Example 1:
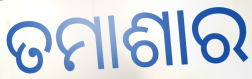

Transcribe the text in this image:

ତମାଶାର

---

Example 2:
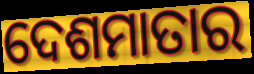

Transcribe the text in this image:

ଦେଶମାତାର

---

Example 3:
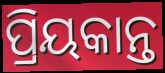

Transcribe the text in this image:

ପ୍ରିୟକାନ୍ତ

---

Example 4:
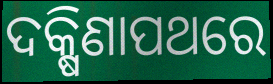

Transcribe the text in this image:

ଦକ୍ଷିଣାପଥରେ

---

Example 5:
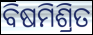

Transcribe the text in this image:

ବିଷମିଶ୍ରିତ